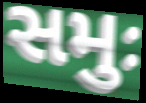
સમુઃ